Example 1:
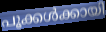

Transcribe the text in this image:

പൂക്കൾക്കായി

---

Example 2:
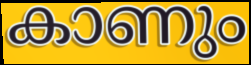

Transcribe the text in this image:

കാണും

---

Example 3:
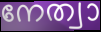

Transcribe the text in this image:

നേത്വാ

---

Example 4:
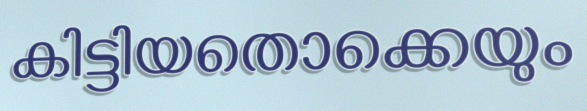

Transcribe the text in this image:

കിട്ടിയതൊക്കെയും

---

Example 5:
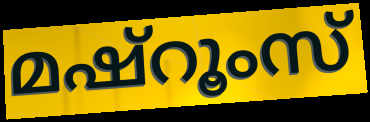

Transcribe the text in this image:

മഷ്റൂംസ്